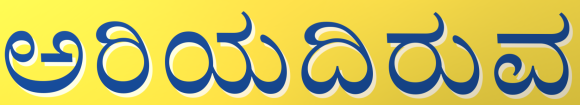
ಅರಿಯದಿರುವ